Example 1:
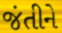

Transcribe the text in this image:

જંતીને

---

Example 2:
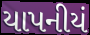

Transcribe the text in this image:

યાપનીયં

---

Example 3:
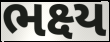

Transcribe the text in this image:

ભક્ષ્ય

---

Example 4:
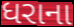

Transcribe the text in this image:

ધરાના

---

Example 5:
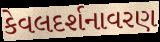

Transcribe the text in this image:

કેવલદર્શનાવરણ